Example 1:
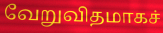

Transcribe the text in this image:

வேறுவிதமாகச்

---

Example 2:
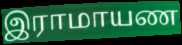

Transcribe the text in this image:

இராமாயண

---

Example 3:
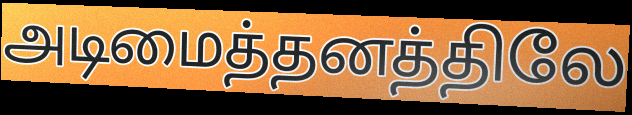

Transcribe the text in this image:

அடிமைத்தனத்திலே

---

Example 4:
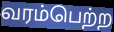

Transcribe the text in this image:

வரம்பெற்ற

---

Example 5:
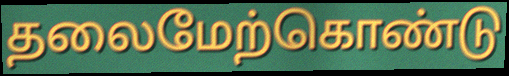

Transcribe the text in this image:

தலைமேற்கொண்டு